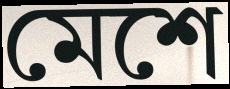
মেশে